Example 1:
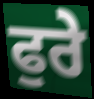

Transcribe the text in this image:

ਫੁਰੇ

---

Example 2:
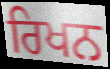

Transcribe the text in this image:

ਰਿਖਨ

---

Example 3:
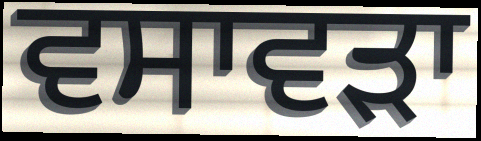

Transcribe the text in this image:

ਵਸਾਵੜਾ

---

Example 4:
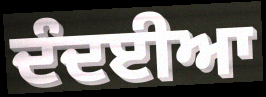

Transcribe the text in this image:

ਦੰਦਈਆ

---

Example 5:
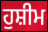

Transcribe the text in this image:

ਹੁਸ਼ੀਮ